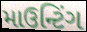
માઉન્ટિંગ